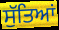
ਸੁੱਤਿਆਂ